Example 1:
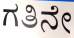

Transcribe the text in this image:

ಗತಿನೇ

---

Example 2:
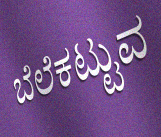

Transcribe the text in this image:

ಬೆಲೆಕಟ್ಟುವ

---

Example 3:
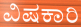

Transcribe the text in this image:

ವಿಷಕಾರಿ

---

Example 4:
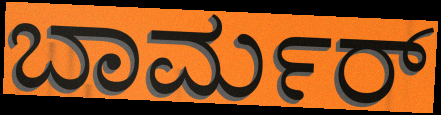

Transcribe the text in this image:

ಬಾರ್ಮರ್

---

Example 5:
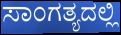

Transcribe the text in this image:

ಸಾಂಗತ್ಯದಲ್ಲಿ